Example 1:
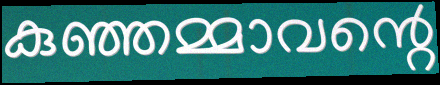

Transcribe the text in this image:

കുഞ്ഞമ്മാവന്റെ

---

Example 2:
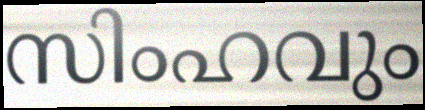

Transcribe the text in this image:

സിംഹവും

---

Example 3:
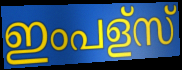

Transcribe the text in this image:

ഇംപള്സ്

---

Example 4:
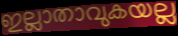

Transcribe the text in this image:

ഇല്ലാതാവുകയല്ല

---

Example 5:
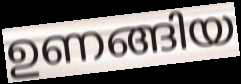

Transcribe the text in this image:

ഉണങ്ങിയ